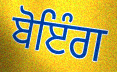
ਬੋਇੰਗ